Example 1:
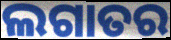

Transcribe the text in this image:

ଲଗାତର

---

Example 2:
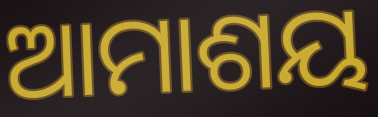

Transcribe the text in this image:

ଆମାଶୟ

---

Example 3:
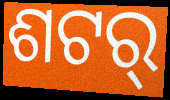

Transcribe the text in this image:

ଶଟର୍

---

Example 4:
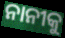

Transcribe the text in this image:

ନାନୀକୁ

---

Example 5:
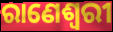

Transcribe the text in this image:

ରାଣେଶ୍ୱରୀ